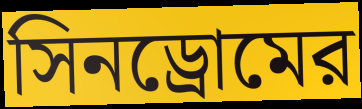
সিনড্রোমের